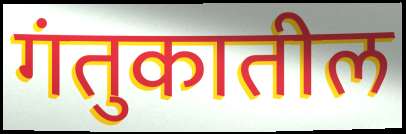
गंतुकातील